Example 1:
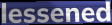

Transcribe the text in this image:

lessened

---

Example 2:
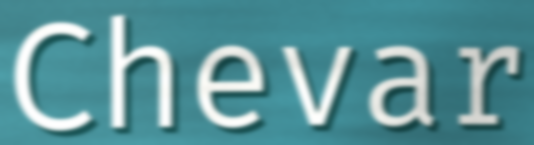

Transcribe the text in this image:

Chevar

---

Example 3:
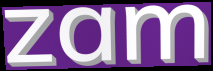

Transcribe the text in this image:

zam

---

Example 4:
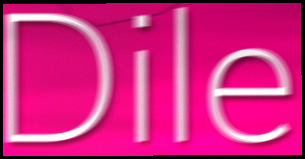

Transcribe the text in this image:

Dile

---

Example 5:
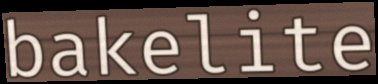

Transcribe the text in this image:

bakelite